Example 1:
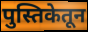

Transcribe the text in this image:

पुस्तिकेतून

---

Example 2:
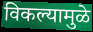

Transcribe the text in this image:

विकल्यामुळे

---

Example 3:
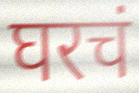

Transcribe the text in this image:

घरचं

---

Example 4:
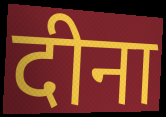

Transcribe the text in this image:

दीना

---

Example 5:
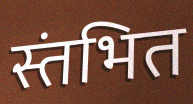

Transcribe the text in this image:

स्तंभित